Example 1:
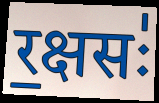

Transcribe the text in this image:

र॒क्षसः॑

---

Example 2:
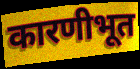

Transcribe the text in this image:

कारणीभूत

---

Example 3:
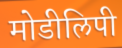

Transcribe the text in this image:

मोडीलिपी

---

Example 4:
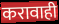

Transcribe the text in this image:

करावाही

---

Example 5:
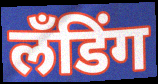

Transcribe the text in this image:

लँडिंग